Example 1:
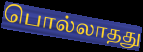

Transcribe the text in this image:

பொல்லாதது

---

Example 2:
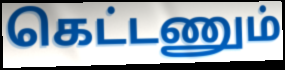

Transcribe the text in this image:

கெட்டணும்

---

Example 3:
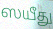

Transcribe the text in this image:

ஸயீது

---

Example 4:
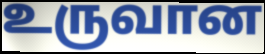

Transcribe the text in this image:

உருவான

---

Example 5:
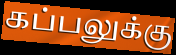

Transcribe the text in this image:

கப்பலுக்கு